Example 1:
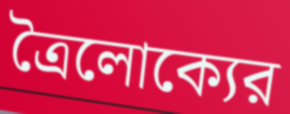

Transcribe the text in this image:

ত্রৈলোক্যের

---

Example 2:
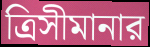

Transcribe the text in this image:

ত্রিসীমানার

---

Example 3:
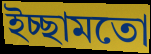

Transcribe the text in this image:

ইচ্ছামতো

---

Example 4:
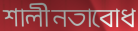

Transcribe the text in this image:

শালীনতাবোধ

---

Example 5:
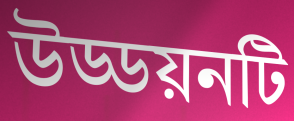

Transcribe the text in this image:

উড্ডয়নটি